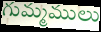
గుమ్మములు